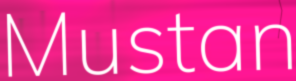
Mustan